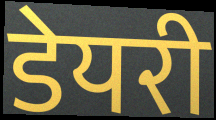
डेयरी